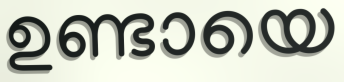
ഉണ്ടായെ